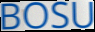
BOSU